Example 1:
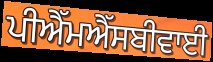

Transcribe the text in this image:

ਪੀਐੱਮਐੱਸਬੀਵਾਈ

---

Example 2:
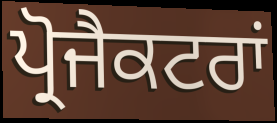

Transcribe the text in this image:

ਪ੍ਰੋਜੈਕਟਰਾਂ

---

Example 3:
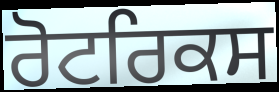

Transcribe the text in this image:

ਰੋਟਰਿਕਸ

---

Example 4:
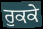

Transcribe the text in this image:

ਰੁਕਕੇ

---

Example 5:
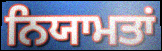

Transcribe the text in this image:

ਨਿਯਾਮਤਾਂ